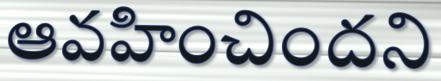
ఆవహించిందని